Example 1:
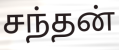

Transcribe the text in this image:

சந்தன்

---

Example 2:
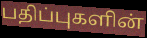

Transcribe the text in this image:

பதிப்புகளின்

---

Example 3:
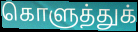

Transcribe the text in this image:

கொளுத்துக்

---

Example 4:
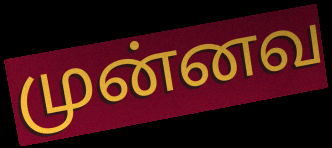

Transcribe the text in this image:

முன்னவ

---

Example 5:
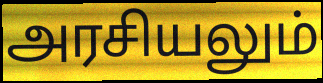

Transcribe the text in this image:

அரசியலும்